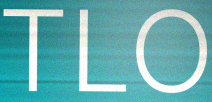
TLO